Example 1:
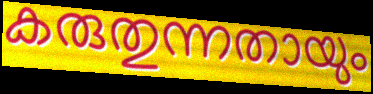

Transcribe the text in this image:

കരുതുന്നതായും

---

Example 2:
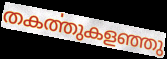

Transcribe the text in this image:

തകൎത്തുകളഞ്ഞു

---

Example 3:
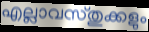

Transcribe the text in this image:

എല്ലാവസ്തുക്കളും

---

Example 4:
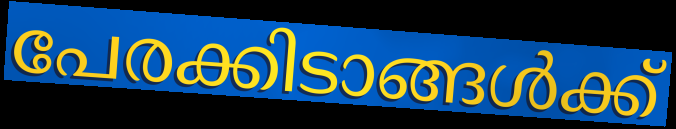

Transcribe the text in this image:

പേരക്കിടാങ്ങൾക്ക്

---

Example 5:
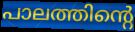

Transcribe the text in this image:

പാലത്തിന്റെ